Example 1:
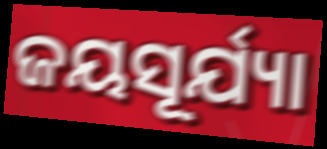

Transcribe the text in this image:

ଜୟସୂର୍ଯ୍ୟା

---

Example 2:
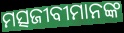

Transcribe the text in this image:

ମତ୍ସଜୀବୀମାନଙ୍କ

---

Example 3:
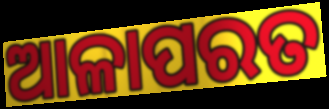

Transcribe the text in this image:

ଆଳାପରତ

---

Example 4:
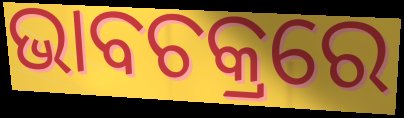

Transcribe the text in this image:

ଭାବଚକ୍ରରେ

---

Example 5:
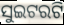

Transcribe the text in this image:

ସୁଇଟରଟି